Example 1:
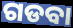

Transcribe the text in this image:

ଗଡବା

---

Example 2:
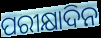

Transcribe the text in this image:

ପରୀକ୍ଷାଦିନ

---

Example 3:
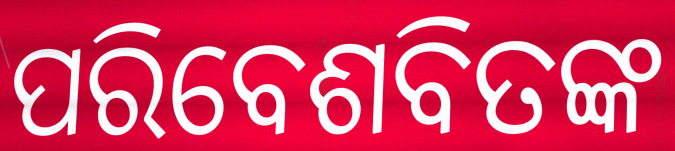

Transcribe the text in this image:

ପରିବେଶବିତଙ୍କ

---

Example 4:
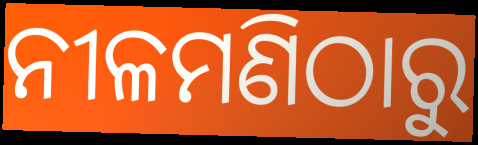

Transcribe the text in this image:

ନୀଳମଣିଠାରୁ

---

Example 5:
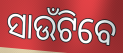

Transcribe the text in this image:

ସାଉଁଟିବେ